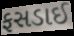
ફસડાઈ